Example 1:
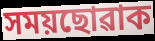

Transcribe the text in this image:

সময়ছোৱাক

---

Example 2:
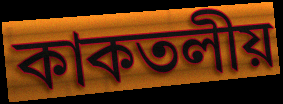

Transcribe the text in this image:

কাকতলীয়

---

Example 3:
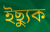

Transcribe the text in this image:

ইছ্যুক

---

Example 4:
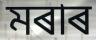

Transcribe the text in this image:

মৰাৰ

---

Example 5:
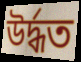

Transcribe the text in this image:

উৰ্দ্ধত